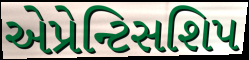
એપ્રેન્ટિસશિપ